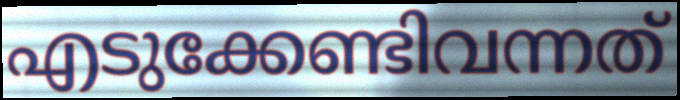
എടുക്കേണ്ടിവന്നത്